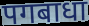
पगबाधा